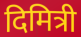
दिमित्री